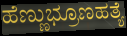
ಹೆಣ್ಣುಭ್ರೂಣಹತ್ಯೆ